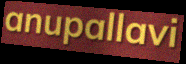
anupallavi